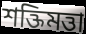
শক্তিমত্তা